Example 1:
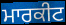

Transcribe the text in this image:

ਮਾਰਕੀਟ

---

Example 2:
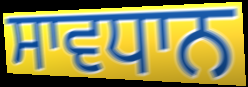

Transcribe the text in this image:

ਸਾਵਧਾਨ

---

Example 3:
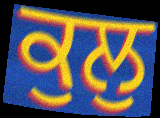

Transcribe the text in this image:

ਕੁਲੁ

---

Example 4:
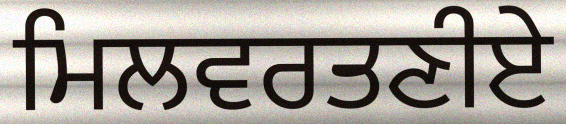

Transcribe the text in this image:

ਮਿਲਵਰਤਣੀਏ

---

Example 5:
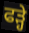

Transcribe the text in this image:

ਫੜ੍ਹੇ